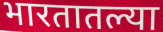
भारतातल्या